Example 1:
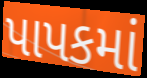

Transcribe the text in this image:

પાપકમાં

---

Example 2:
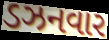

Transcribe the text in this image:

ડઝનવાર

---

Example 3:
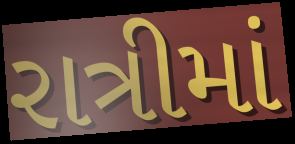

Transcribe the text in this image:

રાત્રીમાં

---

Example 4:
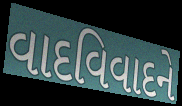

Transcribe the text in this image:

વાદવિવાદને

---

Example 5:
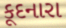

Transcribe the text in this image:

કૂદનારા